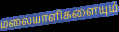
மலையாளிகளையும்